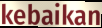
kebaikan